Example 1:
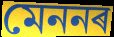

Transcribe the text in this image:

মেননৰ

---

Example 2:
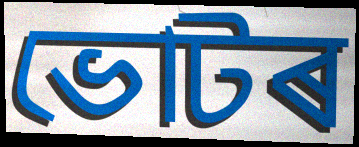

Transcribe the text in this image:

ভোটৰ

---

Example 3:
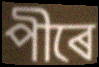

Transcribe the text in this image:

পীৰে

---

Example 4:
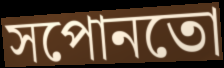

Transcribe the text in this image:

সপোনতো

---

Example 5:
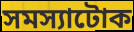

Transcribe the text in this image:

সমস্যাটোক